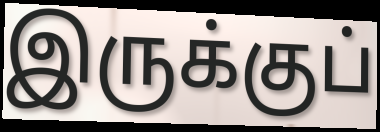
இருக்குப்